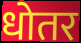
धोतर